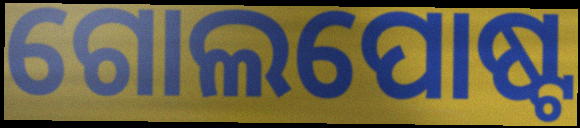
ଗୋଲପୋଷ୍ଟ